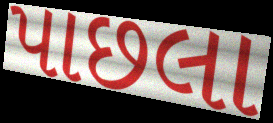
પાછલા